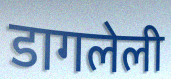
डागलेली